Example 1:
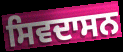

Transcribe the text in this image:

ਸਿਵਦਾਸਨ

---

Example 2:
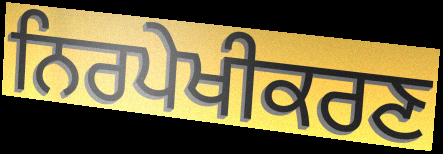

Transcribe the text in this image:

ਨਿਰਪੇਖੀਕਰਣ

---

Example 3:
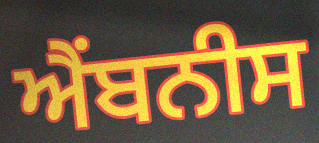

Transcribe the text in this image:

ਐਂਬਨੀਸ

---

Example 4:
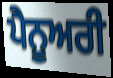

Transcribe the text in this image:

ਪੈਨੂਅਰੀ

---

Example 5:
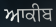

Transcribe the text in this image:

ਆਕੀਬ